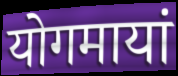
योगमायां